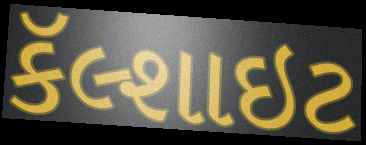
કૅલ્શાઇટ